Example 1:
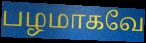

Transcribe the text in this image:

பழமாகவே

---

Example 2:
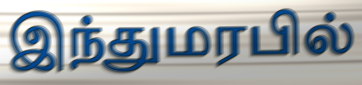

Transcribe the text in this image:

இந்துமரபில்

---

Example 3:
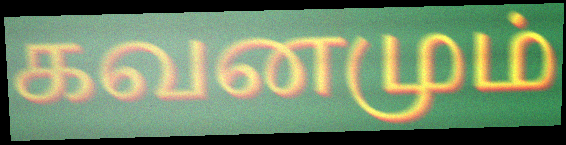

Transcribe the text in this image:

கவனமும்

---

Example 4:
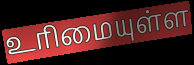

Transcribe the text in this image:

உரிமையுள்ள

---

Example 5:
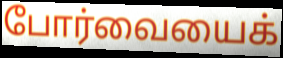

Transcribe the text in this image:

போர்வையைக்